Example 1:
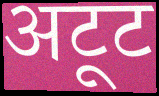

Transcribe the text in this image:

अटूट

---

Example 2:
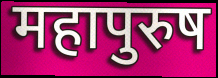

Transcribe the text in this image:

महापुरुष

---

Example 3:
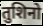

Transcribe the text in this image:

तुशिनो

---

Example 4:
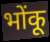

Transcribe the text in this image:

भोंकू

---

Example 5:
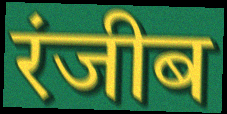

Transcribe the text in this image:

रंजीब